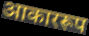
आकाररूप